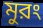
মুরং